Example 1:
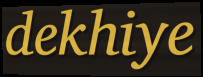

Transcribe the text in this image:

dekhiye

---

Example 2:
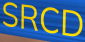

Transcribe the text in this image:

SRCD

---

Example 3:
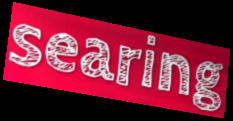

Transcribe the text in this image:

searing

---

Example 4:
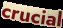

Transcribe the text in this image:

crucial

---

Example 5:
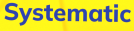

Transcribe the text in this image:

Systematic